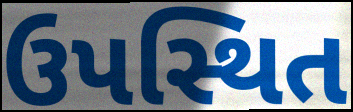
ઉપસ્થિત